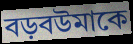
বড়বউমাকে